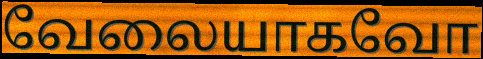
வேலையாகவோ